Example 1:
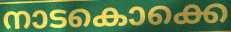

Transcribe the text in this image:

നാടകൊക്കെ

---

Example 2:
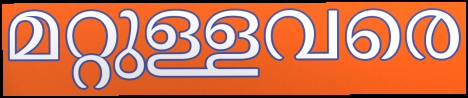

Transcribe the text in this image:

മറ്റുള്ളവരെ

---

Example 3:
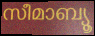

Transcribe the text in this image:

സീമാബ്യൂ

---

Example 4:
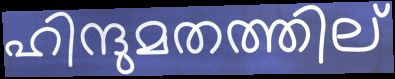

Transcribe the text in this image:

ഹിന്ദുമതത്തില്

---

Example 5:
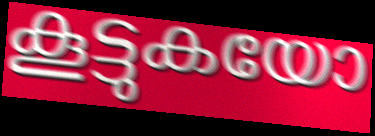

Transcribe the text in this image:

കൂട്ടുകയോ